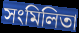
সংমিলিতা